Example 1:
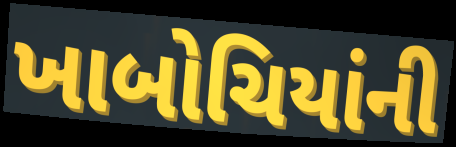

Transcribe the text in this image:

ખાબોચિયાંની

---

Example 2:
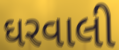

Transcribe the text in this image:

ઘરવાલી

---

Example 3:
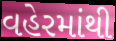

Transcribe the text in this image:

વહેરમાંથી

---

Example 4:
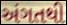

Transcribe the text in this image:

અંગતથી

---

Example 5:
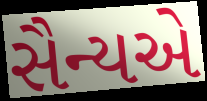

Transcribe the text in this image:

સૈન્યએ